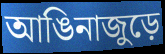
আঙিনাজুড়ে